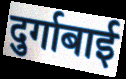
दुर्गाबाई